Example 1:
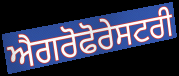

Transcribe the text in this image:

ਐਗਰੋਫੋਰੇਸਟਰੀ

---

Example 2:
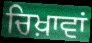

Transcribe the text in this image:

ਚਿਖ਼ਾਵਾਂ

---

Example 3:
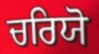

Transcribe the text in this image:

ਚਰਿਯੋ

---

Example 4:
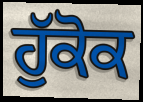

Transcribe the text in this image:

ਹੁੱਕੋਕ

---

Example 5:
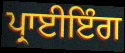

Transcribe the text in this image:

ਪ੍ਰਾਈਇੰਗ